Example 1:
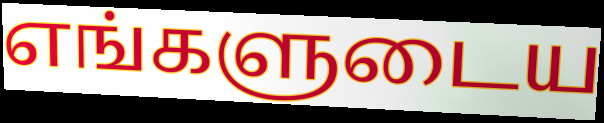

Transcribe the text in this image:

எங்களுடைய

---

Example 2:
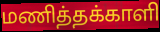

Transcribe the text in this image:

மணித்தக்காளி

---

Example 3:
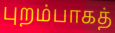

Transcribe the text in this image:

புறம்பாகத்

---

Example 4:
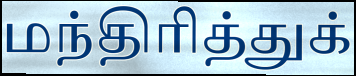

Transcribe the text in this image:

மந்திரித்துக்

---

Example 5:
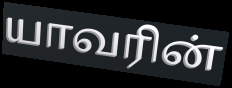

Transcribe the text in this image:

யாவரின்